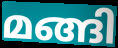
മങ്ങി